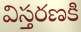
విస్తరణకి